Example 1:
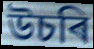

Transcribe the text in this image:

উচৰি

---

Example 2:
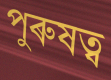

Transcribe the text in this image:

পুৰুষত্ব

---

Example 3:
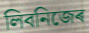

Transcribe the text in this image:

লিবনিজেৰ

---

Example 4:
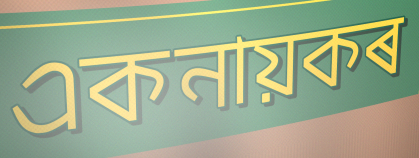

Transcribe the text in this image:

একনায়কৰ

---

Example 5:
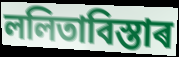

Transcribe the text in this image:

ললিতাবিস্তাৰ